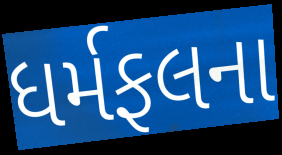
ધર્મફલના